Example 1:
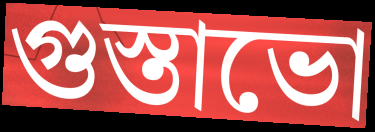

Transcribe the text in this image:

গুস্তাভো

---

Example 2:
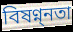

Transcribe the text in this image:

বিষণ্ন্নতা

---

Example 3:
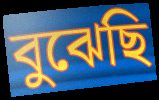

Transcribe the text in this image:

বুঝেছি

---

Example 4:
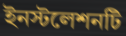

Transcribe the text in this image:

ইনস্টলেশনটি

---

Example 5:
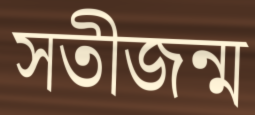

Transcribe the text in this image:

সতীজন্ম